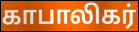
காபாலிகர்